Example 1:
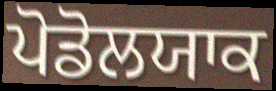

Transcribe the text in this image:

ਪੋਡੋਲਯਾਕ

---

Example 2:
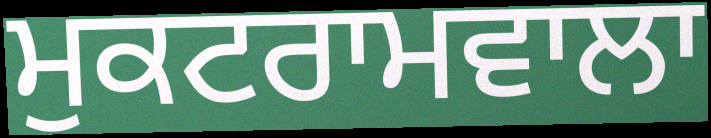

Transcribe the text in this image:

ਮੁਕਟਰਾਮਵਾਲਾ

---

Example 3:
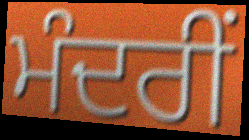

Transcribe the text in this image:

ਮੰਦਰੀਂ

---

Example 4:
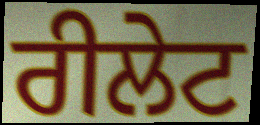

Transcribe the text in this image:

ਰੀਲੇਟ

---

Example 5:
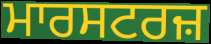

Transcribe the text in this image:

ਮਾਰਸਟਰਜ਼